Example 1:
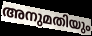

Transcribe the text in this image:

അനുമതിയും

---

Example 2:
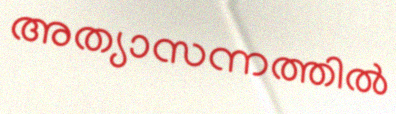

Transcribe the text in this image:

അത്യാസന്നത്തിൽ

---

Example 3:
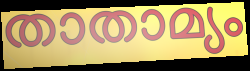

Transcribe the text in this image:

താതാമ്യം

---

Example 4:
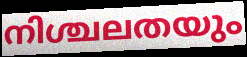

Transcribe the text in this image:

നിശ്ചലതയും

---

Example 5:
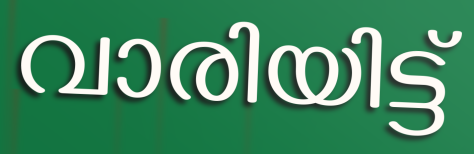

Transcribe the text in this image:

വാരിയിട്ട്